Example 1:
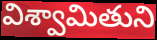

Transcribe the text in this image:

విశ్వామితుని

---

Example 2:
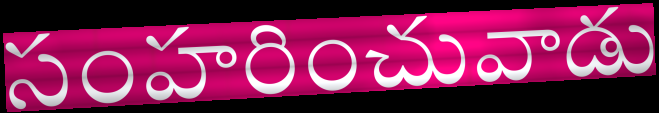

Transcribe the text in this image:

సంహరించువాడు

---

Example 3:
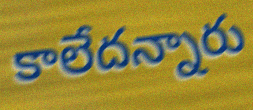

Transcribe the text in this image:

కాలేదన్నారు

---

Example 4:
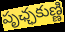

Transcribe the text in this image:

పృఛ్ఛకుణ్ణి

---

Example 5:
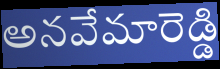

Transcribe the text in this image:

అనవేమారెడ్డి